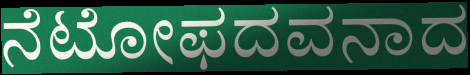
ನೆಟೋಫದವನಾದ